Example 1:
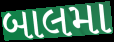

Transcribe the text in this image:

બાલમા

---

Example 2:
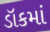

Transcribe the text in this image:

ડૉકમાં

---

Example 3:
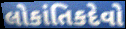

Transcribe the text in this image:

લોકાંતિકદેવો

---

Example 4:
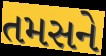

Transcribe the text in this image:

તમસને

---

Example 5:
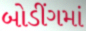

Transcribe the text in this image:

બોડીંગમાં